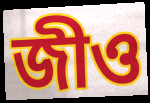
জীও